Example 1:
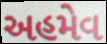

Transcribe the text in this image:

અહમેવ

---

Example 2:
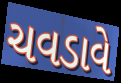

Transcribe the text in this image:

ચવડાવે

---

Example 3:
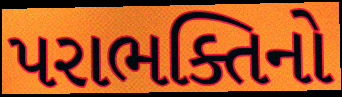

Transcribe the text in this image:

પરાભક્તિનો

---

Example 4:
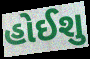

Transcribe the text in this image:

હોઈશુ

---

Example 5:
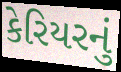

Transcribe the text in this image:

કેરિયરનું